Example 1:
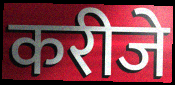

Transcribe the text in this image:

करीजे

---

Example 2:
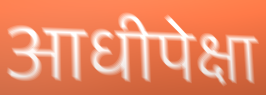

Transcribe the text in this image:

आधीपेक्षा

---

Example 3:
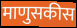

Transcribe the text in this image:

माणुसकीस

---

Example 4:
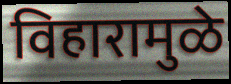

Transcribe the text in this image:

विहारामुळे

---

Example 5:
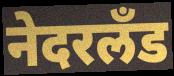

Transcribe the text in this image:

नेदरलँड